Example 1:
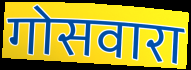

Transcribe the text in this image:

गोसवारा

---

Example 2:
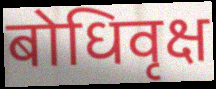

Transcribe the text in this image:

बोधिवृक्ष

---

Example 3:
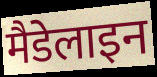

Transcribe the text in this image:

मैडेलाइन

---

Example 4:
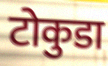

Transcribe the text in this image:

टोकुडा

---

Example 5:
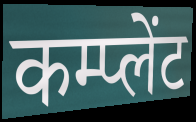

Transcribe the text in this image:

कम्प्लेंट